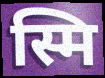
स्मि